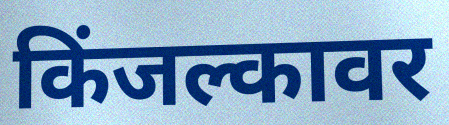
किंजल्कावर